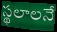
స్థలాలనే